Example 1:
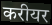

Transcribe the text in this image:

करीयर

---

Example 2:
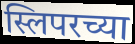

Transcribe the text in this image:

स्लिपरच्या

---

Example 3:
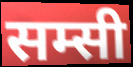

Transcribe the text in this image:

सम्सी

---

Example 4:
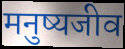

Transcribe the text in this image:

मनुष्यजीव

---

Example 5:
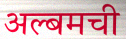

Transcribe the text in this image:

अल्बमची